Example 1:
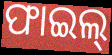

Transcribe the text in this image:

ଫାଇଲ୍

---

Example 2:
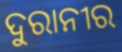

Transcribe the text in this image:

ଦୁରାନୀର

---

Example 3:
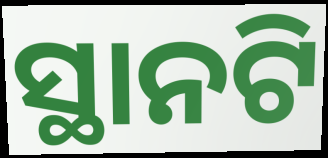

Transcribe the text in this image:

ସ୍ଥାନଟି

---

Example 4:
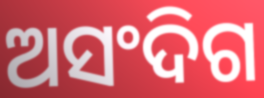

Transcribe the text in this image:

ଅସଂଦିଗ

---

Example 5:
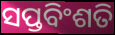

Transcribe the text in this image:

ସପ୍ତବିଂଶତି